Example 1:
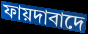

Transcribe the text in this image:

ফায়দাবাদে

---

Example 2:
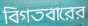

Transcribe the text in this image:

বিগতবারের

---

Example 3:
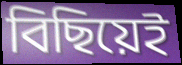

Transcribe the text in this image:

বিছিয়েই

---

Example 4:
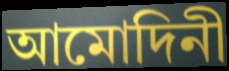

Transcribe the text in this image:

আমোদিনী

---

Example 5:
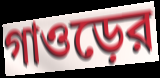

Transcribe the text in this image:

গাওড়ের